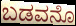
ಬಡವನೊ